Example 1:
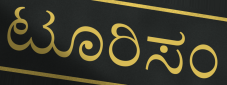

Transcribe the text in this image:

ಟೂರಿಸಂ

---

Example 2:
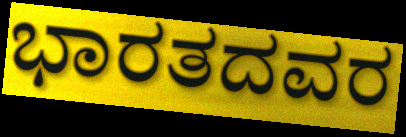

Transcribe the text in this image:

ಭಾರತದವರ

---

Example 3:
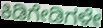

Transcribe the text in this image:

ಕಿಡಿಗೇಡಿಗಳೇ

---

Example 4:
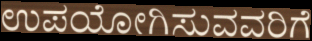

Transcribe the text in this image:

ಉಪಯೋಗಿಸುವವರಿಗೆ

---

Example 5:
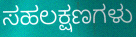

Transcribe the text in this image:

ಸಹಲಕ್ಷಣಗಳು